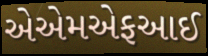
એએમએફઆઈ